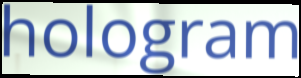
hologram